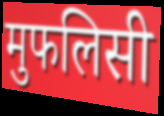
मुफलिसी